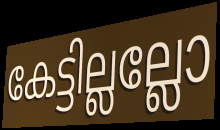
കേട്ടില്ലല്ലോ